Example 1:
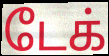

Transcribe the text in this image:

டேக்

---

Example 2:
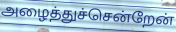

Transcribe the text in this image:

அழைத்துச்சென்றேன்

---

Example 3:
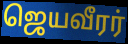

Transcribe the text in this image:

ஜெயவீரர்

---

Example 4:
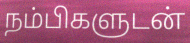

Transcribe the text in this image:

நம்பிகளுடன்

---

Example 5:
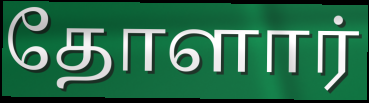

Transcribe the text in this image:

தோளார்